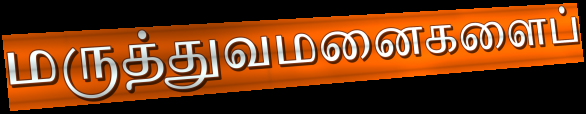
மருத்துவமனைகளைப்